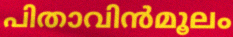
പിതാവിൻമൂലം